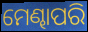
ମେଣ୍ଢାପରି